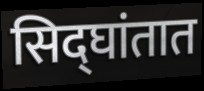
सिद्घांतात